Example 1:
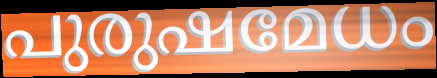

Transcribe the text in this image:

പുരുഷമേധം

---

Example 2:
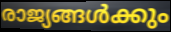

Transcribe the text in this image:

രാജ്യങ്ങൾക്കും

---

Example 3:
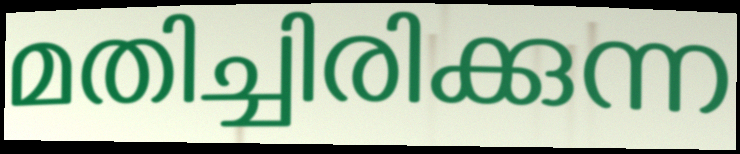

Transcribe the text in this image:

മതിച്ചിരിക്കുന്ന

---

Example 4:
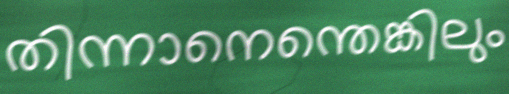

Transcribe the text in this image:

തിന്നാനെന്തെങ്കിലും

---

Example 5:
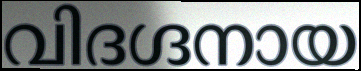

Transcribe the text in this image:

വിദഗ്ദനായ